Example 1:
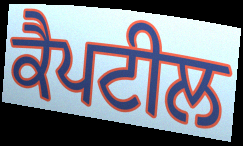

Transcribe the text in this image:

ਕੈਪਟੀਲ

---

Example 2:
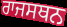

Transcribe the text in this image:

ਰਾਜਸਥਨ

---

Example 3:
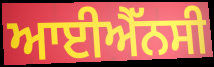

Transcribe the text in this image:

ਆਈਐੱਨਸੀ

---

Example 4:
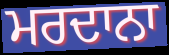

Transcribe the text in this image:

ਮਰਦਾਨਾ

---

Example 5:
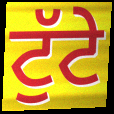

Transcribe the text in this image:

ਟੁੱਟੇ